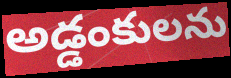
అడ్డంకులను